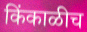
किंकाळीच